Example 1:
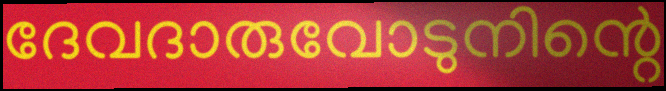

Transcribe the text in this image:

ദേവദാരുവോടുനിന്റെ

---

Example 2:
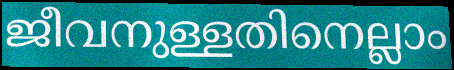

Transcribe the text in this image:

ജീവനുള്ളതിനെല്ലാം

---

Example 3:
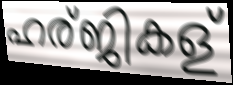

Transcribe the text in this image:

ഹര്ജികള്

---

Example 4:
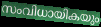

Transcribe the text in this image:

സംവിധായികയും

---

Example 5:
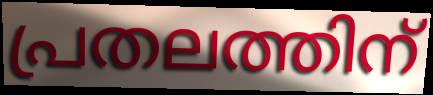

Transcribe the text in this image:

പ്രതലത്തിന്